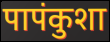
पापंकुशा